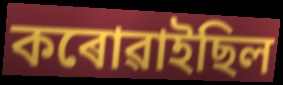
কৰোৱাইছিল